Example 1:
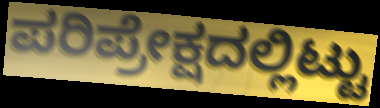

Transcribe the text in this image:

ಪರಿಪ್ರೇಕ್ಷದಲ್ಲಿಟ್ಟು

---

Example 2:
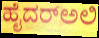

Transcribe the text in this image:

ಹೈದರ್‌ಅಲಿ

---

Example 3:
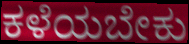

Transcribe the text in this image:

ಕಳೆಯಬೇಕು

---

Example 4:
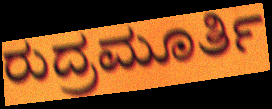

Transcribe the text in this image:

ರುದ್ರಮೂರ್ತಿ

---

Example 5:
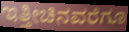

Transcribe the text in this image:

ಇತ್ತೀಚಿನವರೆಗೂ